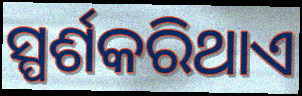
ସ୍ପର୍ଶକରିଥାଏ